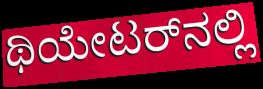
ಥಿಯೇಟರ್‌ನಲ್ಲಿ